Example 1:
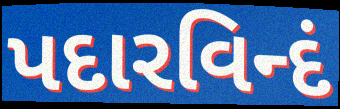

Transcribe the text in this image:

પદારવિન્દં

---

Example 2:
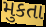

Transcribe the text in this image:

મુકતા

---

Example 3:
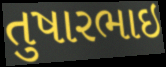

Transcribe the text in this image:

તુષારભાઇ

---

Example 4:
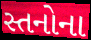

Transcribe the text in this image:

સ્તનોના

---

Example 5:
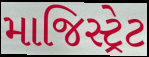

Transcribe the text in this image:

માજિસ્ટ્રેટ